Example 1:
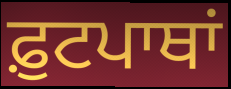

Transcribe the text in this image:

ਫ਼ੁਟਪਾਥਾਂ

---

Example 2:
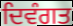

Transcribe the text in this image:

ਦਿਵੰਗਤ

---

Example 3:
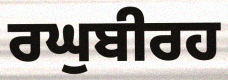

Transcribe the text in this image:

ਰਘੁਬੀਰਹ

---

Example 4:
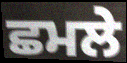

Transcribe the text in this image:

ਛਮਲੇ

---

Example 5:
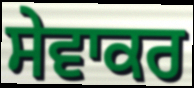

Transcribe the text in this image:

ਸੇਵਾਕਰ